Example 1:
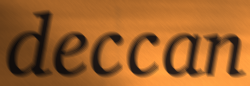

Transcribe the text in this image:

deccan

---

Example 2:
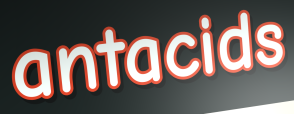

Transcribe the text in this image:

antacids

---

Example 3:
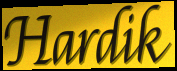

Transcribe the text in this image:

Hardik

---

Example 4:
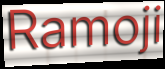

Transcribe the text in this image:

Ramoji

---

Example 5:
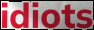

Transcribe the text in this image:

idiots